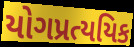
યોગપ્રત્યયિક